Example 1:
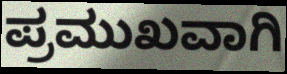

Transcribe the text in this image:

ಪ್ರಮುಖವಾಗಿ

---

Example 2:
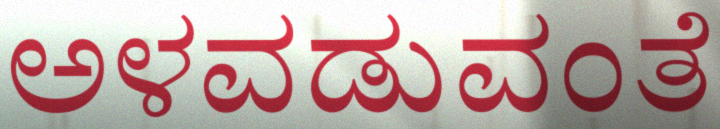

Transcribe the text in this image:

ಅಳವಡುವಂತೆ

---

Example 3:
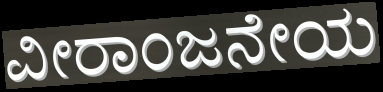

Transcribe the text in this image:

ವೀರಾಂಜನೇಯ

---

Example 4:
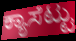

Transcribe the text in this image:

ಕ್ಯಾಸೆಟ್ಟು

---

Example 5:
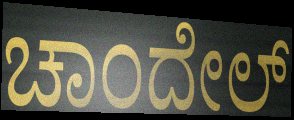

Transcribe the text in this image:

ಚಾಂದೇಲ್